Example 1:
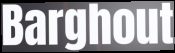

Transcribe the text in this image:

Barghout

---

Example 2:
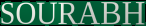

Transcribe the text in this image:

SOURABH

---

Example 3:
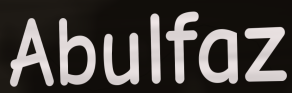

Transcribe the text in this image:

Abulfaz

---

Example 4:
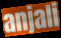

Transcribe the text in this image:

anjali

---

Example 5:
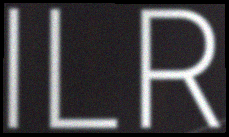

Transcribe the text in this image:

ILR